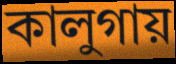
কালুগায়